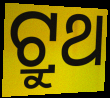
ଟ୍ରୁଥ